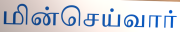
மின்செய்வார்